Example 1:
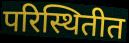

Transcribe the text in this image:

परिस्थितीत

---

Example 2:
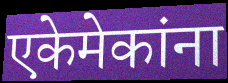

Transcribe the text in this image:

एकेमेकांना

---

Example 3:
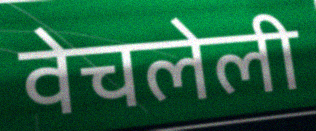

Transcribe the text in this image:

वेचलेली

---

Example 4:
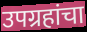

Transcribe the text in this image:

उपग्रहांचा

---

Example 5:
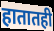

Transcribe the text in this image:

हातातही